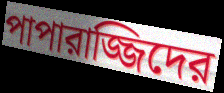
পাপারাজ্জিদের